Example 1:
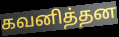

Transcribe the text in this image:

கவனித்தன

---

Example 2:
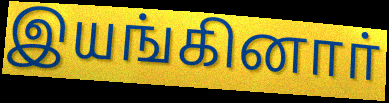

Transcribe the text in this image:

இயங்கினார்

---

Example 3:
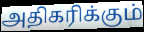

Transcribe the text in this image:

அதிகரிக்கும்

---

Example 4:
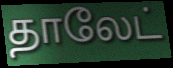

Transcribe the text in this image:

தாலேட்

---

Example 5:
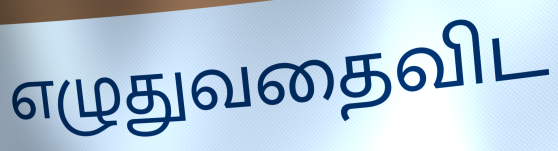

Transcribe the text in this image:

எழுதுவதைவிட